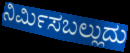
ನಿರ್ಮಿಸಬಲ್ಲುದು